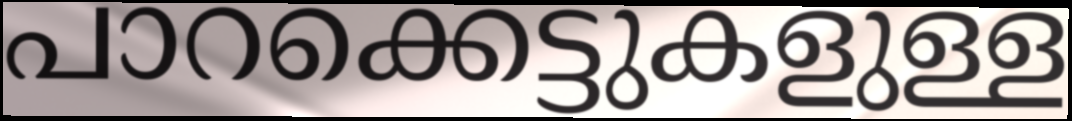
പാറക്കെട്ടുകളുള്ള